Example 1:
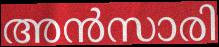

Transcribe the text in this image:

അൻസാരി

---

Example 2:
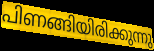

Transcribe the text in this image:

പിണങ്ങിയിരിക്കുന്നു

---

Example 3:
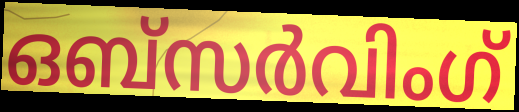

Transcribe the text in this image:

ഒബ്സർവിംഗ്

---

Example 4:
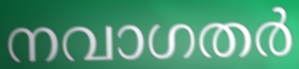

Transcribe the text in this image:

നവാഗതർ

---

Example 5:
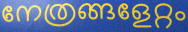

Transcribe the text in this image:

നേത്രങ്ങളേറ്റം